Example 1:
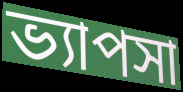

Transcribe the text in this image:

ভ্যাপসা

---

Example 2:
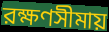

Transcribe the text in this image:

রক্ষণসীমায়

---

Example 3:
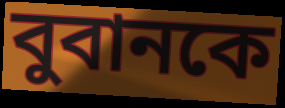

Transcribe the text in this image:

বুবানকে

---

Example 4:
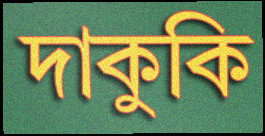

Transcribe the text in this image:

দাকুকি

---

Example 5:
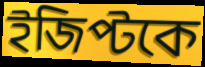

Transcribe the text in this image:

ইজিপ্টকে